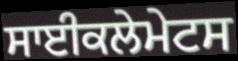
ਸਾਈਕਲੇਮੇਟਸ